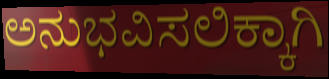
ಅನುಭವಿಸಲಿಕ್ಕಾಗಿ